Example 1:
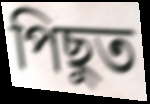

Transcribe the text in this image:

পিছুত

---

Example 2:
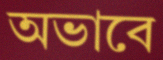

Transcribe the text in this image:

অভাবে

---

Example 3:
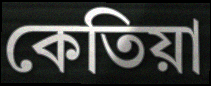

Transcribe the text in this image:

কেতিয়া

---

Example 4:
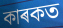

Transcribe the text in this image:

কাৰকত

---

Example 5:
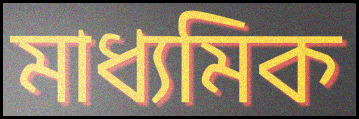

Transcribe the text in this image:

মাধ্যমিক